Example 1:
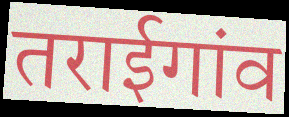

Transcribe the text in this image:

तराईगांव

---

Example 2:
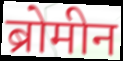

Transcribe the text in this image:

ब्रोमीन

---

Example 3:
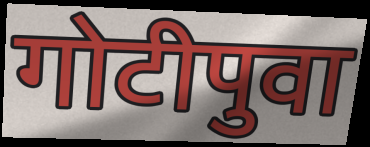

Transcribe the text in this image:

गोटीपुवा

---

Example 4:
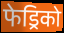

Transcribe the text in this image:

फेड्रिको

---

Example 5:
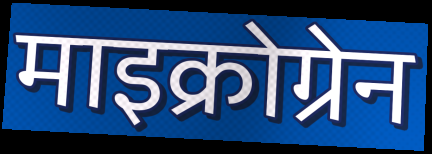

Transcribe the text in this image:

माइक्रोग्रेन